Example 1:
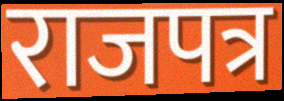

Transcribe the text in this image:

राजपत्र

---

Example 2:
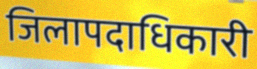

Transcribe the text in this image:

जिलापदाधिकारी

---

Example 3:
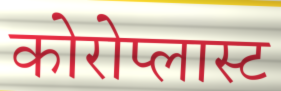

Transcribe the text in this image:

कोरोप्लास्ट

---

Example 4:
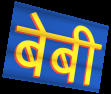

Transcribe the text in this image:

बेबी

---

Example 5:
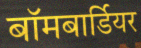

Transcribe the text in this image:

बॉमबार्डियर